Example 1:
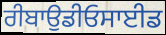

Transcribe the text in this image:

ਰੀਬਾਉਡੀਓਸਾਈਡ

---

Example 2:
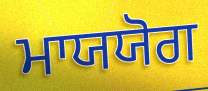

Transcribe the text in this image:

ਮਾਯਯੋਗ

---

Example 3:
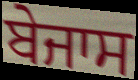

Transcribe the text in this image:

ਬੇਜਾਸ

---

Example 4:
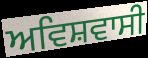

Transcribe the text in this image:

ਅਵਿਸ਼ਵਾਸੀ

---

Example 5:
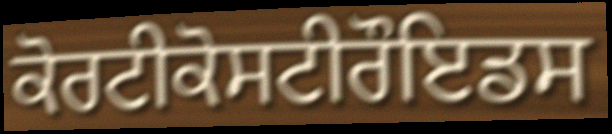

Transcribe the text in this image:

ਕੋਰਟੀਕੋਸਟੀਰੌਇਡਸ